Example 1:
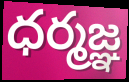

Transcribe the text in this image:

ధర్మజ్ఞ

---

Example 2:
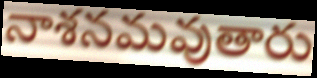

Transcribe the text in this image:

నాశనమవుతారు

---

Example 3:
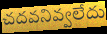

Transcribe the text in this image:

చదవనివ్వలేదు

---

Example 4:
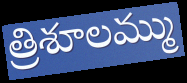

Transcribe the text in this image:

త్రిశూలమ్ము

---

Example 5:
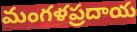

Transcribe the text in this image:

మంగళప్రదాయ